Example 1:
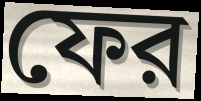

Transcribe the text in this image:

ফের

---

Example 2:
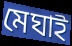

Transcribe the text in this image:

মেঘাই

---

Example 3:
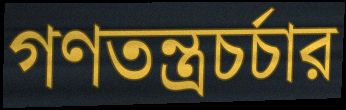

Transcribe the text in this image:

গণতন্ত্রচর্চার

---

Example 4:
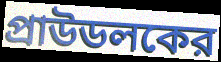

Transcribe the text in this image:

প্রাউডলকের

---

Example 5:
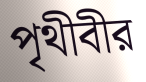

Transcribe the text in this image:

পৃথীবীর